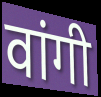
वांगी